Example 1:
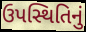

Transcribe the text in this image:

ઉપસ્થિતિનું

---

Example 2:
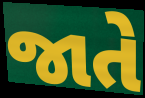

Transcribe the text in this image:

જાતે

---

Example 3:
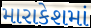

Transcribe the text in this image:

મારાકેશમાં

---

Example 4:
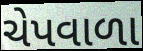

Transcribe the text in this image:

ચેપવાળા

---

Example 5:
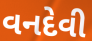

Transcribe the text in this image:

વનદેવી